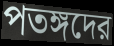
পতঙ্গদের